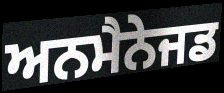
ਅਨਮੈਨੇਜਡ